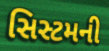
સિસ્ટમની